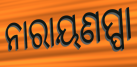
ନାରାୟଣପ୍ପା